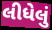
લીધેલું